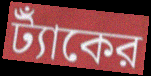
ট্যাঁকের